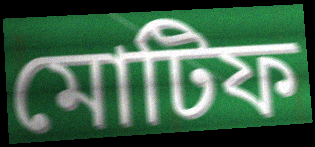
মোটিফ